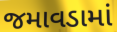
જમાવડામાં